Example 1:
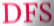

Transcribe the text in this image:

DFS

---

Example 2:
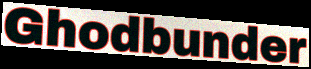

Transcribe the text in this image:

Ghodbunder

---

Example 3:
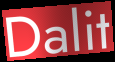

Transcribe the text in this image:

Dalit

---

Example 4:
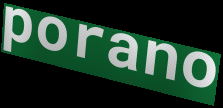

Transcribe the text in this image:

porano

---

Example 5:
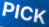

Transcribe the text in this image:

PICK